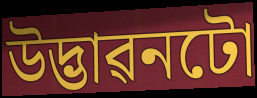
উদ্ভাৱনটো